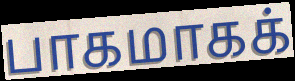
பாகமாகக்